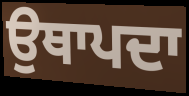
ਉਥਾਪਦਾ